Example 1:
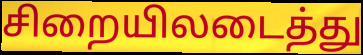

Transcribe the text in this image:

சிறையிலடைத்து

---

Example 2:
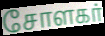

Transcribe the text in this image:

சோளகர்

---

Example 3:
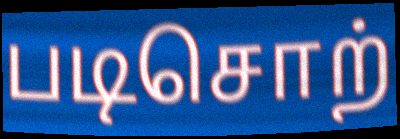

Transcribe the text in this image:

படிசொற்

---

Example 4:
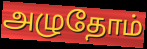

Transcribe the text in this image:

அழுதோம்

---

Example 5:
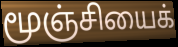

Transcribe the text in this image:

மூஞ்சியைக்